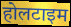
होलटाइम